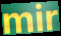
mir